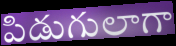
పిడుగులాగా